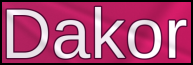
Dakor